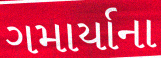
ગમાર્યાના